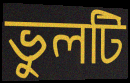
ভুলটি